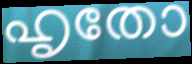
ഹൃതോ